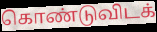
கொண்டுவிடக்